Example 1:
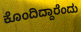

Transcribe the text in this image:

ಕೊಂದಿದ್ದಾರೆಂದು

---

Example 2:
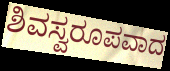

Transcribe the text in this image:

ಶಿವಸ್ವರೂಪವಾದ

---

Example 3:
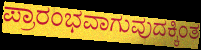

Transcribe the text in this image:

ಪ್ರಾರಂಭವಾಗುವುದಕ್ಕಿಂತ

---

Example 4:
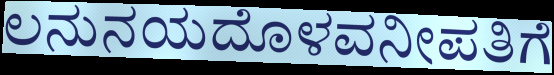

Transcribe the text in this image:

ಲನುನಯದೊಳವನೀಪತಿಗೆ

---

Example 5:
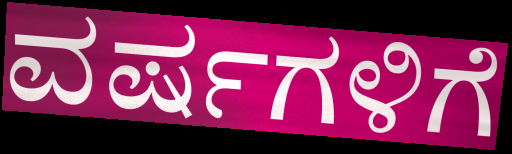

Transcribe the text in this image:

ವರ್ಷಗಳಿಗೆ